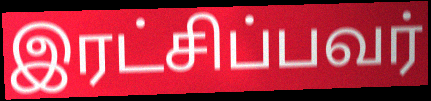
இரட்சிப்பவர்